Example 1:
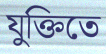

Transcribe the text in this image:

যুক্তিতে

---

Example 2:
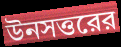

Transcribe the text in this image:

উনসত্তরের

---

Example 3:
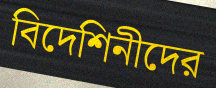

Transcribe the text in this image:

বিদেশিনীদের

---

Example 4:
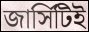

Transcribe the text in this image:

জার্সিটিই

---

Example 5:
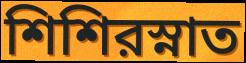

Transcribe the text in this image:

শিশিরস্নাত